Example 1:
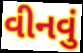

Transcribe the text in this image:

વીનવું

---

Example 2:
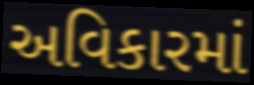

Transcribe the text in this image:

અવિકારમાં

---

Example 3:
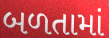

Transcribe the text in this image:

બળતામાં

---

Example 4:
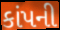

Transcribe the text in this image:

કાંપની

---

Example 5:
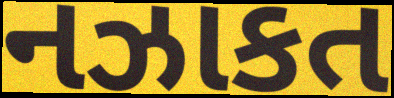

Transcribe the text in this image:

નઝાકત